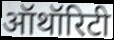
ऑथॉरिटी